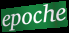
epoche